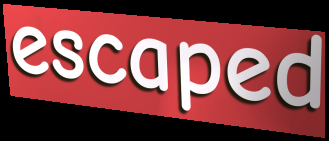
escaped